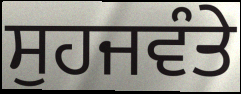
ਸੁਹਜਵੰਤੇ